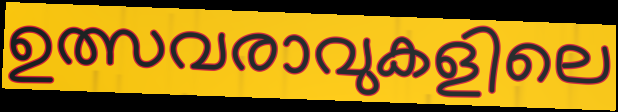
ഉത്സവരാവുകളിലെ